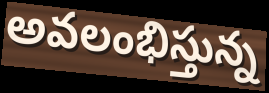
అవలంభిస్తున్న